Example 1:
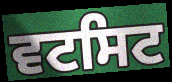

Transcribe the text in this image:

ਵਟਸਿਟ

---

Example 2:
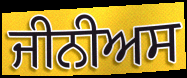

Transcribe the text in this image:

ਜੀਨੀਅਸ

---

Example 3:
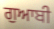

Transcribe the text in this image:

ਗੁਆਬੀ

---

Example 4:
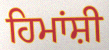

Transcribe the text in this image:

ਹਿਮਾਂਸ਼ੀ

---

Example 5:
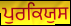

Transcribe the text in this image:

ਪੁਰਕਿਯੁਸ